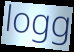
logg